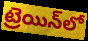
ట్రెయిన్‌లో